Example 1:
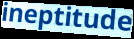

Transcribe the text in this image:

ineptitude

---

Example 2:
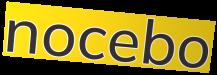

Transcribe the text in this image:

nocebo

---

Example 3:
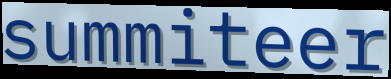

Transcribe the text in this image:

summiteer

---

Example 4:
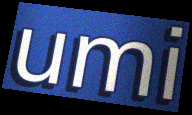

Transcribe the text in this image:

umi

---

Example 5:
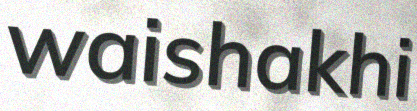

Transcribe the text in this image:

waishakhi